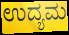
ಉದ್ಯಮ